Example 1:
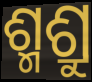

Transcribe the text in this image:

ଶ୍ମଶ୍ରୁ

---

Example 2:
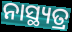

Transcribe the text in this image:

ନାସ୍ଥ୍ୟତ୍ର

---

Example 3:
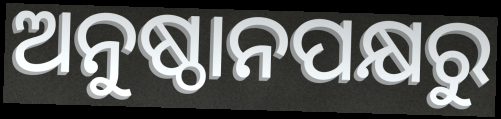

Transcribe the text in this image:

ଅନୁଷ୍ଠାନପକ୍ଷରୁ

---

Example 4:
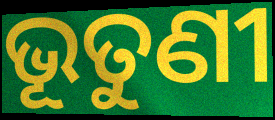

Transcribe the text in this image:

ଭୂତୁଣୀ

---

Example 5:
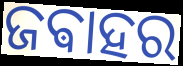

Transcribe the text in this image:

ଜଵାହର